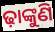
ଢ଼ାଙ୍କୁଣି